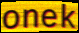
onek